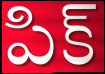
పిక్